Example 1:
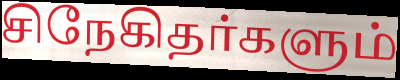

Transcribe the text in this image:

சிநேகிதர்களும்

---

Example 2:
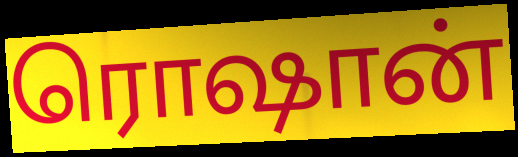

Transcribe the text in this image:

ரொஷான்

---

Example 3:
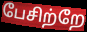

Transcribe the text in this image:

பேசிற்றே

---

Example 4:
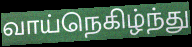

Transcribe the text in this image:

வாய்நெகிழ்ந்து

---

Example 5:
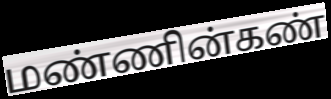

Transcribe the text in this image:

மண்ணின்கண்